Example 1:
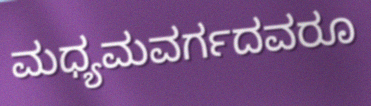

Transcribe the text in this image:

ಮಧ್ಯಮವರ್ಗದವರೂ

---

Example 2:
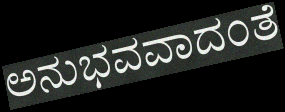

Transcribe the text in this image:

ಅನುಭವವಾದಂತೆ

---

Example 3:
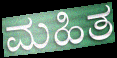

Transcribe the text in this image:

ಮಹಿತ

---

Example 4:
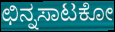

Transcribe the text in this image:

ಛಿನ್ನಸಾಟಕೋ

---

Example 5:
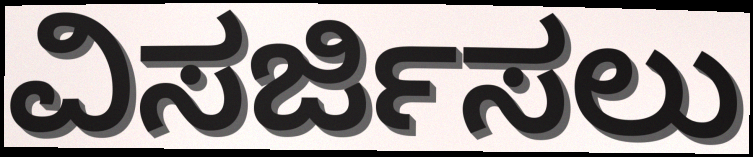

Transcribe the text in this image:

ವಿಸರ್ಜಿಸಲು